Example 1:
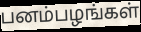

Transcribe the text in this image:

பனம்பழங்கள்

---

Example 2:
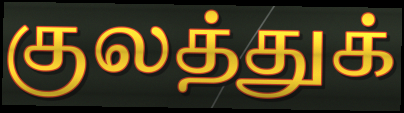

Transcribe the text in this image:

குலத்துக்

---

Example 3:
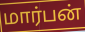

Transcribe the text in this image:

மார்பன்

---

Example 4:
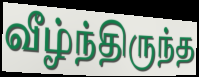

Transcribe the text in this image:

வீழ்ந்திருந்த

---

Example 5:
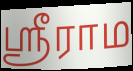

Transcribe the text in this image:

ஸ்ரீராம